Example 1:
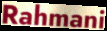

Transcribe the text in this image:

Rahmani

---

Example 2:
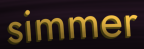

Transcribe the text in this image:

simmer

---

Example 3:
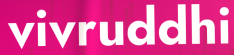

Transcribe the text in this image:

vivruddhi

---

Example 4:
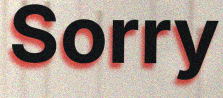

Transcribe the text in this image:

Sorry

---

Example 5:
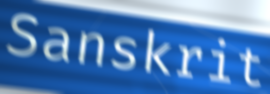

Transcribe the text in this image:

Sanskrit